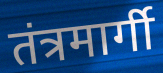
तंत्रमार्गी